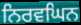
ਨਿਰਵਘਿਨ